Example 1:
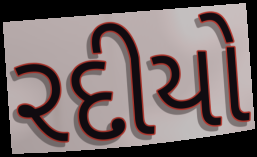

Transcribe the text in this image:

રદીયો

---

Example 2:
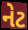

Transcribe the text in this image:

નેટ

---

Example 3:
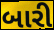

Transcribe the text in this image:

બારી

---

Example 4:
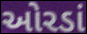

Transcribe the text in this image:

ઓરડાં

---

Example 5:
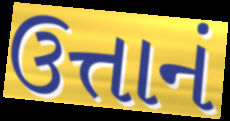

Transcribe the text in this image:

ઉત્તાનં